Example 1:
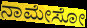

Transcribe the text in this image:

ನಾಮೇಸೋ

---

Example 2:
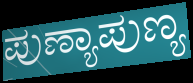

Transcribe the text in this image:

ಪುಣ್ಯಾಪುಣ್ಯ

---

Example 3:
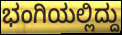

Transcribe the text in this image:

ಭಂಗಿಯಲ್ಲಿದ್ದು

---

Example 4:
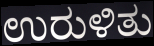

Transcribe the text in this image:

ಉರುಳಿತು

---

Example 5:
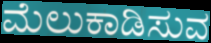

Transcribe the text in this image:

ಮೆಲುಕಾಡಿಸುವ